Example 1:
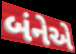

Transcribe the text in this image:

બંનેએ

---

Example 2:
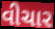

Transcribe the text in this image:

વીચાર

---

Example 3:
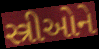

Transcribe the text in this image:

સ્ત્રીઓને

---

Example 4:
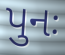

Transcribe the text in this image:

પુનઃ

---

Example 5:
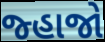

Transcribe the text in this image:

જ્હાજો